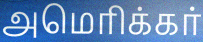
அமெரிக்கர்